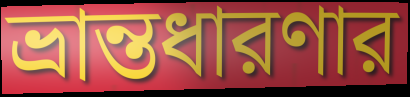
ভ্রান্তধারণার